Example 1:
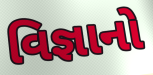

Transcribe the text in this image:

વિજ્ઞાનો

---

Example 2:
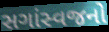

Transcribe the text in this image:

સગાંસ્વજનો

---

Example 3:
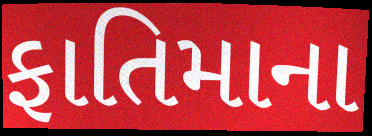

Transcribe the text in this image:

ફાતિમાના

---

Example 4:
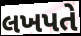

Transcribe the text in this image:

લખપતે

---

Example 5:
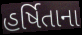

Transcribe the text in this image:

હર્ષિતાના